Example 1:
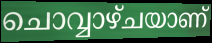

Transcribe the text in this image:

ചൊവ്വാഴ്ചയാണ്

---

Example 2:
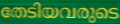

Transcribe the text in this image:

തേടിയവരുടെ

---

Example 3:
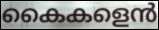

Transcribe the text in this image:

കൈകളെൻ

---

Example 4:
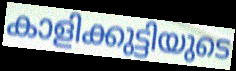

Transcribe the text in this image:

കാളിക്കുട്ടിയുടെ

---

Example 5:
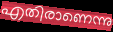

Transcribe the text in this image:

എതിരാണെന്നു